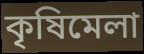
কৃষিমেলা